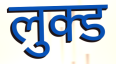
लुक्ड